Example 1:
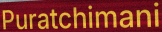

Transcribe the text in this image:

Puratchimani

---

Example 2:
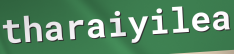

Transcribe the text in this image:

tharaiyilea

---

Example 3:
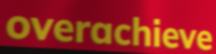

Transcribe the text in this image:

overachieve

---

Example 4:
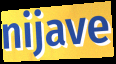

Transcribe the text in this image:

nijave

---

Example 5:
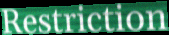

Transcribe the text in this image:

Restriction